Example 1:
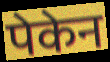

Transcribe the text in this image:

पेकेन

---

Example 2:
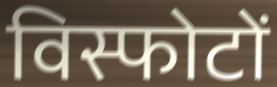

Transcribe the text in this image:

विस्फोटों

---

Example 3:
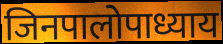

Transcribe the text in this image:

जिनपालोपाध्याय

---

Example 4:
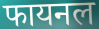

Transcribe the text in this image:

फायनल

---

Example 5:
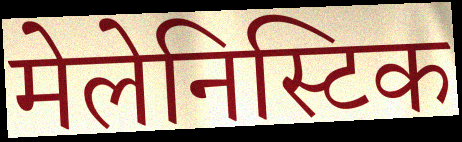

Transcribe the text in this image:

मेलेनिस्टिक